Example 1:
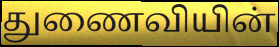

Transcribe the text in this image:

துணைவியின்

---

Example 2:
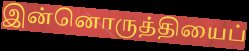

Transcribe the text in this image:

இன்னொருத்தியைப்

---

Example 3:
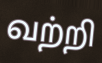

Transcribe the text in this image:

வற்றி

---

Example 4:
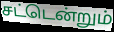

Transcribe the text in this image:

சட்டென்றும்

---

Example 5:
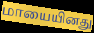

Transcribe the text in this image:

மாயையினது